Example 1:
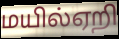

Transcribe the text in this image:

மயில்ஏறி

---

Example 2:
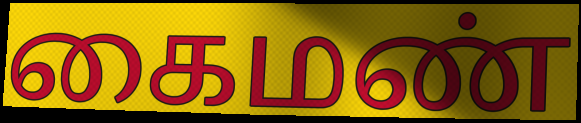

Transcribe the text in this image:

கைமண்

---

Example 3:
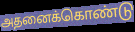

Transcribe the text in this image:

அதனைக்கொண்டு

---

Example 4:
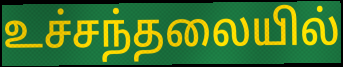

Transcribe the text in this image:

உச்சந்தலையில்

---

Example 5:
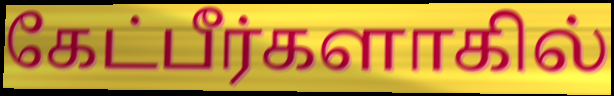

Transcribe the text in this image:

கேட்பீர்களாகில்